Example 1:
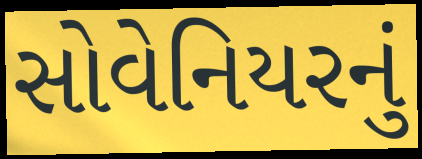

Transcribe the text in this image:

સોવેનિયરનું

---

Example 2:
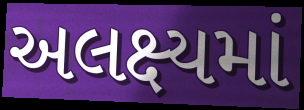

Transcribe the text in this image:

અલક્ષ્યમાં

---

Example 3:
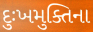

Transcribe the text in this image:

દુઃખમુક્તિના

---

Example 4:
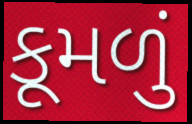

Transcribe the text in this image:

કૂમળું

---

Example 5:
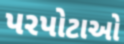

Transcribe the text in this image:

પરપોટાઓ